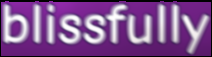
blissfully